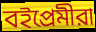
বইপ্রেমীরা